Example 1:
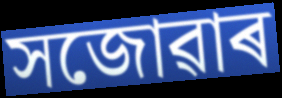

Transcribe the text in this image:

সজোৱাৰ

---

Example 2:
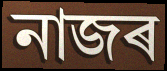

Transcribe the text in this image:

নাজৰ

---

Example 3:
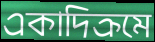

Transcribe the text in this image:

একাদিক্ৰমে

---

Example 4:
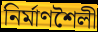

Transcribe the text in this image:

নিৰ্মাণশৈলী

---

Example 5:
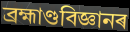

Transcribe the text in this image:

ব্ৰহ্মাণ্ডবিজ্ঞানৰ